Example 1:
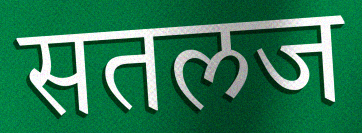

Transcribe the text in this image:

सतलज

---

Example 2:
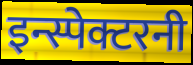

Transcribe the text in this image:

इन्स्पेक्टरनी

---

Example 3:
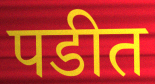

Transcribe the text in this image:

पडीत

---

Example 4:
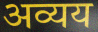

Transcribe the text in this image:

अव्यय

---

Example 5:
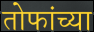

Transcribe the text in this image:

तोफांच्या